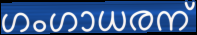
ഗംഗാധരന്